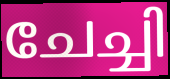
ചേച്ചി